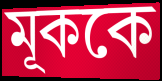
মূককে